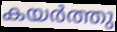
കയർത്തു